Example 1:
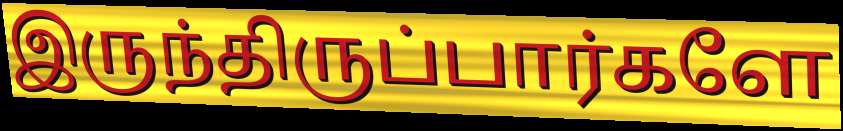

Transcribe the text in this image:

இருந்திருப்பார்களே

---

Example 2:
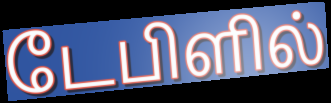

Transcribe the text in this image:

டேபிளில்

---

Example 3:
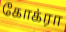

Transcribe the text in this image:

கோக்ரா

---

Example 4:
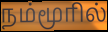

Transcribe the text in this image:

நம்மூரில்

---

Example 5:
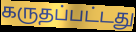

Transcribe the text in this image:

கருதப்பட்டது